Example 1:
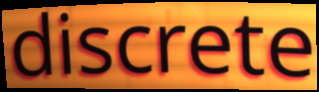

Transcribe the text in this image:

discrete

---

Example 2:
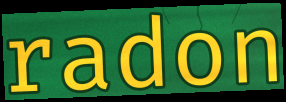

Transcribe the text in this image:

radon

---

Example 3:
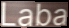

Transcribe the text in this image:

Laba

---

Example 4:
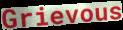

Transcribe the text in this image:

Grievous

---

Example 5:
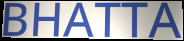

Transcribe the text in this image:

BHATTA